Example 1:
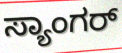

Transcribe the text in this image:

ಸ್ಯಾಂಗರ್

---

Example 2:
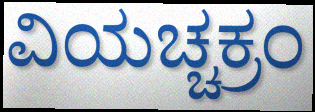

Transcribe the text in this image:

ವಿಯಚ್ಚಕ್ರಂ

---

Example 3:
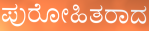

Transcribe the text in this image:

ಪುರೋಹಿತರಾದ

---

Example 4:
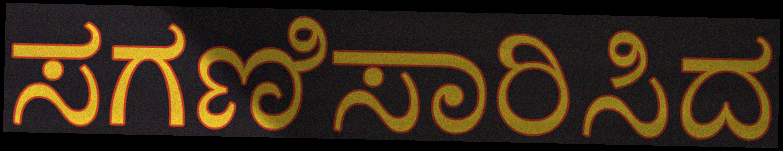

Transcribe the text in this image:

ಸಗಣಿಸಾರಿಸಿದ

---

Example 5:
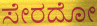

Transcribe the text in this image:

ಸೇರದೋ